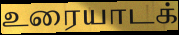
உரையாடக்